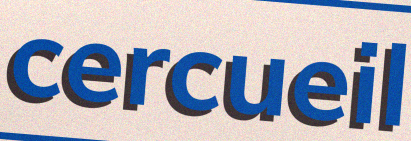
cercueil